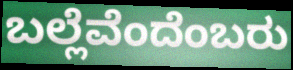
ಬಲ್ಲೆವೆಂದೆಂಬರು